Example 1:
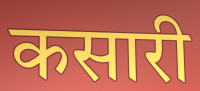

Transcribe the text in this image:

कसारी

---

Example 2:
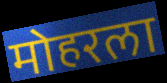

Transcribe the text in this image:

मोहरला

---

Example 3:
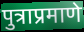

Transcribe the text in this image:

पुत्राप्रमाणे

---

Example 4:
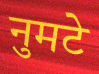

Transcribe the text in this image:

नुमटे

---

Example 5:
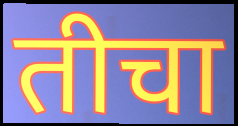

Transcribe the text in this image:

तीचा